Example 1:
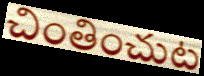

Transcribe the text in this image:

చింతించుట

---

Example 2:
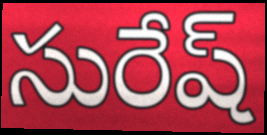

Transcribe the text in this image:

సురేష్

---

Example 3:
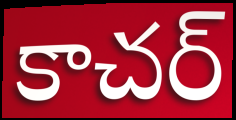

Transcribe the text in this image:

కాచర్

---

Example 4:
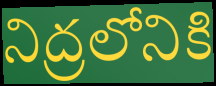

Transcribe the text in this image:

నిద్రలోనికి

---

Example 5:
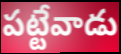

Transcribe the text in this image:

పట్టేవాడు